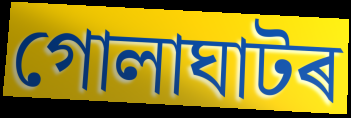
গোলাঘাটৰ